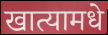
खात्यामधे